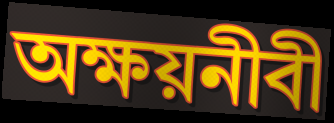
অক্ষয়নীবী